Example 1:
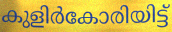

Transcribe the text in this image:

കുളിർകോരിയിട്ട്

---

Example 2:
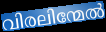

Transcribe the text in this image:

വിരലിന്മേൽ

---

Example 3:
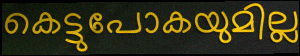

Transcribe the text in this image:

കെട്ടുപോകയുമില്ല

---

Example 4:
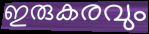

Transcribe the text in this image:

ഇരുകരവും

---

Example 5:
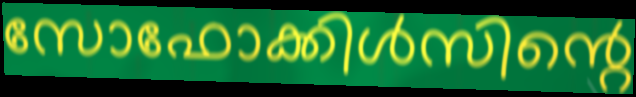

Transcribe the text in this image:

സോഫോക്കിൾസിന്റെ